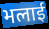
भलाई